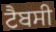
ਟੈਬਸੀ